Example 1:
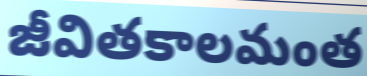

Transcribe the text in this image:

జీవితకాలమంత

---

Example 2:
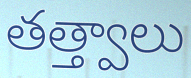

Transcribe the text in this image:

తత్త్వాలు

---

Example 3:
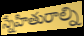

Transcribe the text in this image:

స్నేహితురాల్ని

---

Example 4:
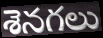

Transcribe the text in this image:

శెనగలు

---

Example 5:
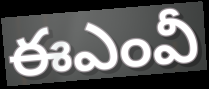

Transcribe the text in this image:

ఈఎంవీ